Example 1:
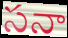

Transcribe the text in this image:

సనా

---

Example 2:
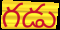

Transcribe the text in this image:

గడు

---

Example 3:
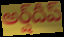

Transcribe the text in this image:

అర్ష్‌దీప్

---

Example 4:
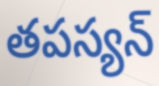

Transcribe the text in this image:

తపస్యన్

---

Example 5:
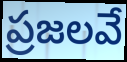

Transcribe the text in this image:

ప్రజలవే